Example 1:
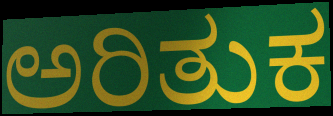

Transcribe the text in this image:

ಅರಿತುಕ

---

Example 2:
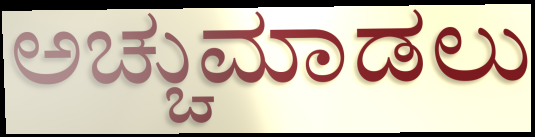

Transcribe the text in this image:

ಅಚ್ಚುಮಾಡಲು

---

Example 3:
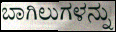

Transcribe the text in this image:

ಬಾಗಿಲುಗಳನ್ನು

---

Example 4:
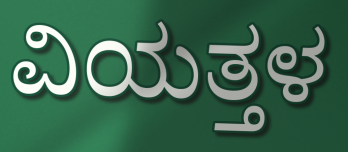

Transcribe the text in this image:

ವಿಯತ್ತಳ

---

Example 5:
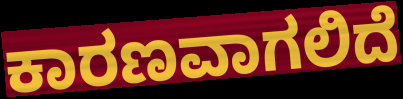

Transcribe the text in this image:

ಕಾರಣವಾಗಲಿದೆ